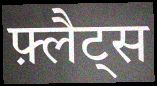
फ़्लैट्स